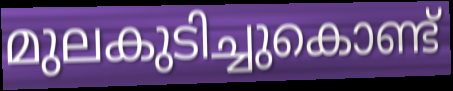
മുലകുടിച്ചുകൊണ്ട്